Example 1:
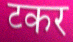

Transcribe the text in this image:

टकर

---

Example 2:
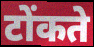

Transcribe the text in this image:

टोंकते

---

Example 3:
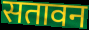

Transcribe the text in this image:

सतावन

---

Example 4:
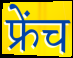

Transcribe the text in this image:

फ्रेंच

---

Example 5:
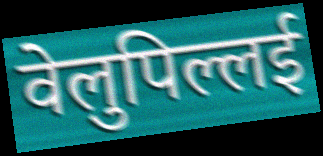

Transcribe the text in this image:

वेलुपिल्लई